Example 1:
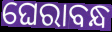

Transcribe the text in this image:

ଘେରାବନ୍ଧ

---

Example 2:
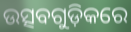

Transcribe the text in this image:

ଉତ୍ସବଗୁଡ଼ିକରେ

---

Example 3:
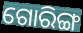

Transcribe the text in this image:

ଗୋରିଙ୍ଗ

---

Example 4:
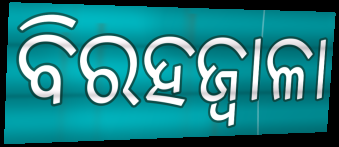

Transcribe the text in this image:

ବିରହଜ୍ୱାଳା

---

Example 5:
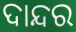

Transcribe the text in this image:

ଦାନ୍ଦର